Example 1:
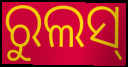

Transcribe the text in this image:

ରୁଲସ୍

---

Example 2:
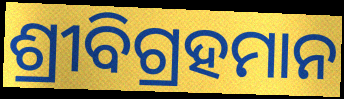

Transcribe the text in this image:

ଶ୍ରୀବିଗ୍ରହମାନ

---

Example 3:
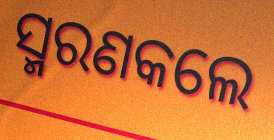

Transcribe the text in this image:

ସ୍ମରଣକଲେ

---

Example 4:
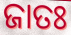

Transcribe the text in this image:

ଜାତଃ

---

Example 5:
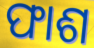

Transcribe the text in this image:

ଫାଶ